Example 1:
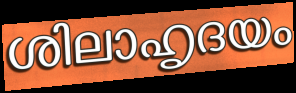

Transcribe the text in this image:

ശിലാഹൃദയം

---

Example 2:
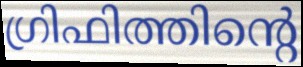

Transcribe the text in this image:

ഗ്രിഫിത്തിന്റെ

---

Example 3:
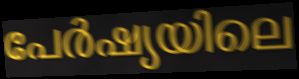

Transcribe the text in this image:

പേർഷ്യയിലെ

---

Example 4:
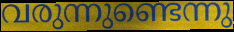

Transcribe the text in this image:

വരുന്നുണ്ടെന്നു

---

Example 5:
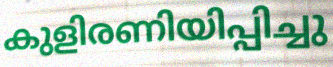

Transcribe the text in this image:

കുളിരണിയിപ്പിച്ചു